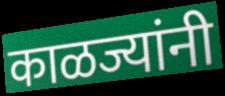
काळज्यांनी